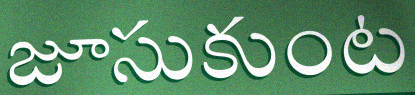
జూసుకుంట